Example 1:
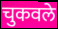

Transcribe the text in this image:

चुकवले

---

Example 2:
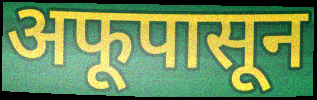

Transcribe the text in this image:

अफूपासून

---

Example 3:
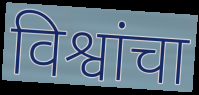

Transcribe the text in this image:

विश्वांचा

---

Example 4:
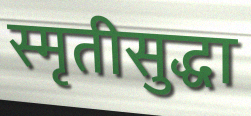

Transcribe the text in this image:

स्मृतीसुद्धा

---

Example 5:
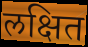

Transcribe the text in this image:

लक्षित